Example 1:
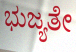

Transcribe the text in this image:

ಭುಜ್ಯತೇ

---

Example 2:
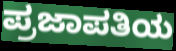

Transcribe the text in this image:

ಪ್ರಜಾಪತಿಯ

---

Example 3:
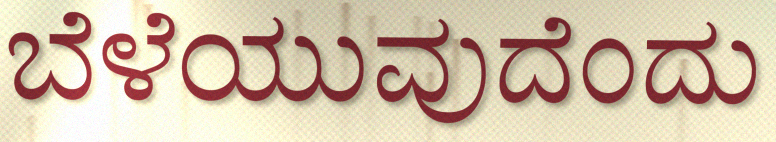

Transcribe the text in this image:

ಬೆಳೆಯುವುದೆಂದು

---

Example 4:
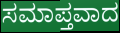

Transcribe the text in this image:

ಸಮಾಪ್ತವಾದ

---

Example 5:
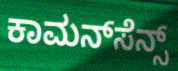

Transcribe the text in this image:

ಕಾಮನ್‌ಸೆನ್ಸ್